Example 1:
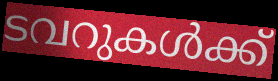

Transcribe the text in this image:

ടവറുകൾക്ക്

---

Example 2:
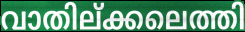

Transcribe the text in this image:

വാതില്ക്കലെത്തി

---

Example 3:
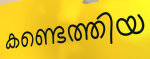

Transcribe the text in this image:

കണ്ടെത്തിയ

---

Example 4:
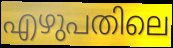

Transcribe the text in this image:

എഴുപതിലെ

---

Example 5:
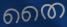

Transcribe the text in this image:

തൈ